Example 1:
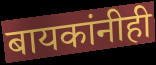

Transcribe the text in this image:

बायकांनीही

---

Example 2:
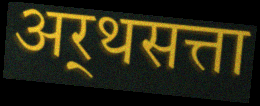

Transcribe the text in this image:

अर्थसत्ता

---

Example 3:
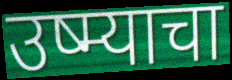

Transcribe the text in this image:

उष्म्याचा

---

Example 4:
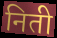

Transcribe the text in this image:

निती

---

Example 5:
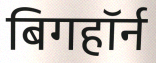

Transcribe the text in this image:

बिगहॉर्न